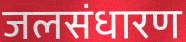
जलसंधारण